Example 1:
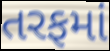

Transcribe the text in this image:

તરફમાં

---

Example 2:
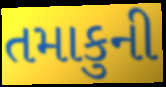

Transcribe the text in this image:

તમાકુની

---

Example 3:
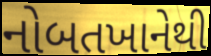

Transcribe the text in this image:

નોબતખાનેથી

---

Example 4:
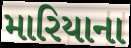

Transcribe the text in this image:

મારિયાના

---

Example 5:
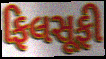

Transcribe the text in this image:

ફિલસૂફી